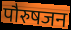
पौरुषजन